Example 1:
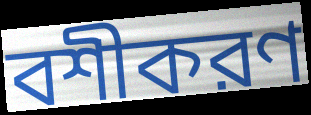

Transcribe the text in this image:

বশীকরণ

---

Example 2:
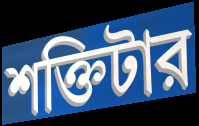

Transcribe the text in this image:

শক্তিটার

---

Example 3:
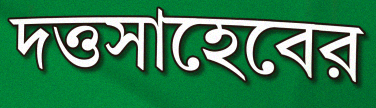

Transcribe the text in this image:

দত্তসাহেবের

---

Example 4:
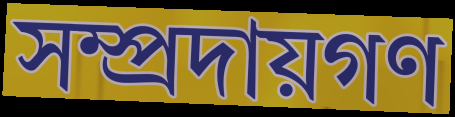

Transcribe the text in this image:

সম্প্রদায়গণ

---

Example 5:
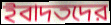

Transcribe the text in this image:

ইবাদতদের